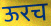
ऊरच